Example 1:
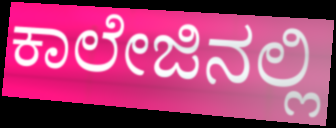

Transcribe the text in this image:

ಕಾಲೇಜಿನಲ್ಲಿ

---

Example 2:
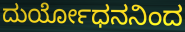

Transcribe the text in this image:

ದುರ್ಯೋಧನನಿಂದ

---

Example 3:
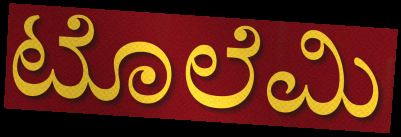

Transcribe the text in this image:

ಟೊಲೆಮಿ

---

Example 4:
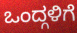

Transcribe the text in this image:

ಒಂದ್ಗಳಿಗೆ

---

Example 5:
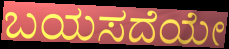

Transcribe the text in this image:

ಬಯಸದೆಯೇ